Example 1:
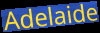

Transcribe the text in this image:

Adelaide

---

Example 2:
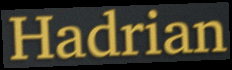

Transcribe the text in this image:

Hadrian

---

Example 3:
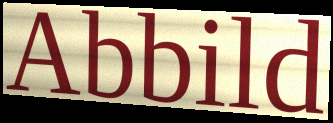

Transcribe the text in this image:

Abbild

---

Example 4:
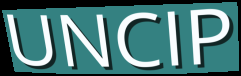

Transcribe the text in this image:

UNCIP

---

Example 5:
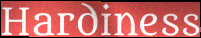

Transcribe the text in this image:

Hardiness